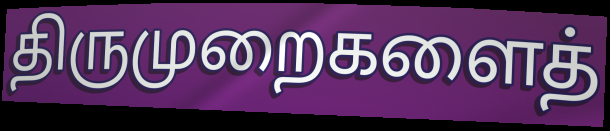
திருமுறைகளைத்